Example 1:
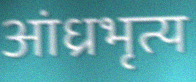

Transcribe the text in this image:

आंध्रभृत्य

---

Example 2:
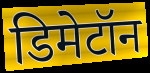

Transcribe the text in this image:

डिमेटॉन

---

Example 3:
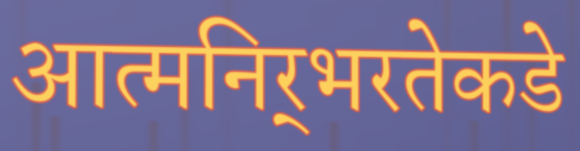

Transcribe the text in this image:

आत्मनिर्भरतेकडे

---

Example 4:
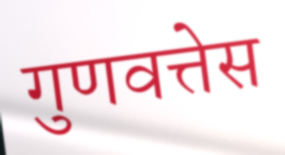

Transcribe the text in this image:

गुणवत्तेस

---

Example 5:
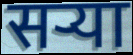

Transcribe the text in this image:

सऱ्या